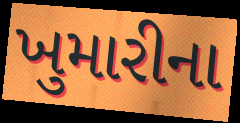
ખુમારીના